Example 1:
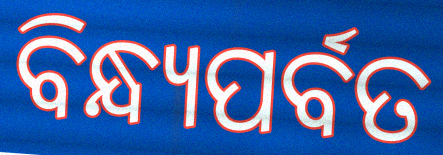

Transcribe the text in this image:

ବିନ୍ଧ୍ୟପର୍ବତ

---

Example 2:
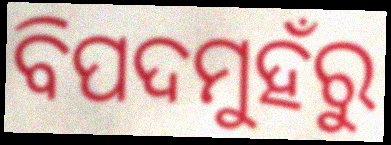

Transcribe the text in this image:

ବିପଦମୁହଁରୁ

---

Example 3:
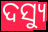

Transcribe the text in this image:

ଦସ୍ୟୁ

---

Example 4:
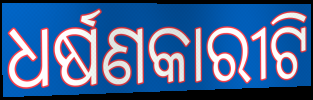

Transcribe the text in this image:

ଧର୍ଷଣକାରୀଟି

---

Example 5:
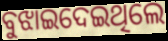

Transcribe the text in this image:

ବୁଝାଇଦେଇଥିଲେ